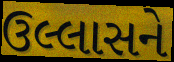
ઉલ્લાસને